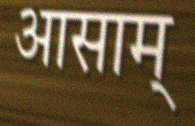
आसाम्